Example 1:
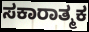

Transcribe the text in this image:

ಸಕಾರಾತ್ಮಕ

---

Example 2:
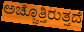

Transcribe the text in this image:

ಅಚ್ಚೊತ್ತಿರುತ್ತದೆ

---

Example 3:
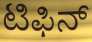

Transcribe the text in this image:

ಟಿಫಿನ್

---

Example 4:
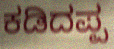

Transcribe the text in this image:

ಕಡಿದಪ್ಪ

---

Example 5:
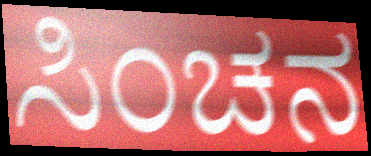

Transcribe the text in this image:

ಸಿಂಚನ